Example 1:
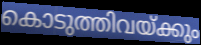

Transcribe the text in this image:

കൊടുത്തിവയ്ക്കും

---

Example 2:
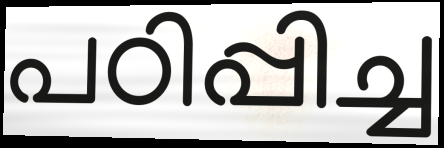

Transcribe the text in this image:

പഠിപ്പിച്ച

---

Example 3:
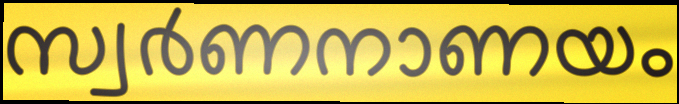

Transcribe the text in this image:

സ്വർണനാണയം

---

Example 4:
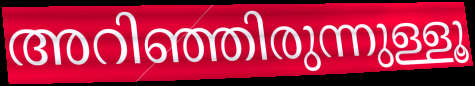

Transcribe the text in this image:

അറിഞ്ഞിരുന്നുള്ളൂ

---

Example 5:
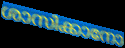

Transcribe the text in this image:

ശാസിക്കാനോ